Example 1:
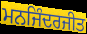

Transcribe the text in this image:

ਮਨਜਿੰਦਰਜੀਤ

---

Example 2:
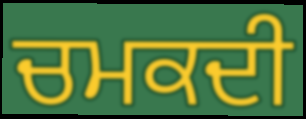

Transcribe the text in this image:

ਚਮਕਦੀ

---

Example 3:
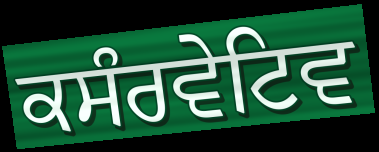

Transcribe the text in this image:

ਕਸੰਰਵੇਟਿਵ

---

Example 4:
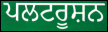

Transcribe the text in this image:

ਪਲਟਰੂਸ਼ਨ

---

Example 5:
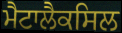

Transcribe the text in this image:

ਮੈਟਾਲੈਕਸਿਲ